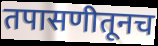
तपासणीतूनच